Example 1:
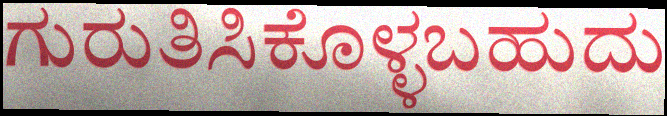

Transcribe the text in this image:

ಗುರುತಿಸಿಕೊಳ್ಳಬಹುದು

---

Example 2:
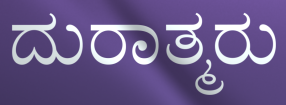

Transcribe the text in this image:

ದುರಾತ್ಮರು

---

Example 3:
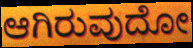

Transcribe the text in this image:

ಆಗಿರುವುದೋ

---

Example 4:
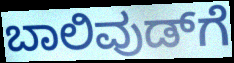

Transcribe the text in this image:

ಬಾಲಿವುಡ್‌ಗೆ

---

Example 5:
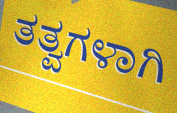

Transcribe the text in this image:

ತತ್ವಗಳಾಗಿ